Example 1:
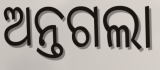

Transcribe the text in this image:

ଅନ୍ତଗଲା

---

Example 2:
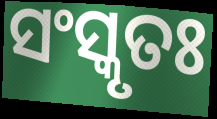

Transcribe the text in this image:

ସଂସ୍କୃତଃ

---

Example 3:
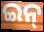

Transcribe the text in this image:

ଇନ୍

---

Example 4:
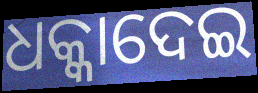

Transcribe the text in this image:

ଧକ୍କାଦେଇ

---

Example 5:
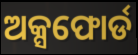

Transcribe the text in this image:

ଅକ୍ସଫୋର୍ଡ